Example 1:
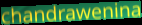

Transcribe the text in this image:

chandrawenina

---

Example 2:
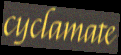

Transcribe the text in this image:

cyclamate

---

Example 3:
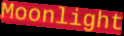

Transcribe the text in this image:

Moonlight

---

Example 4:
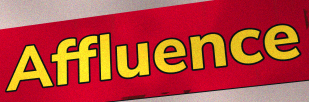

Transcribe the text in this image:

Affluence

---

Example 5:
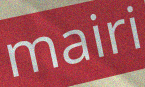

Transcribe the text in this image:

mairi